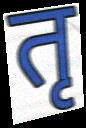
तृ